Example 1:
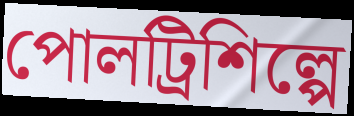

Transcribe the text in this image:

পোলট্রিশিল্পে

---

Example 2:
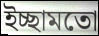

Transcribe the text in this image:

ইচ্ছামতো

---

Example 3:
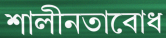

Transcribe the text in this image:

শালীনতাবোধ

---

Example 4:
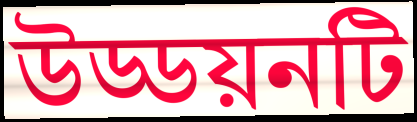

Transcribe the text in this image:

উড্ডয়নটি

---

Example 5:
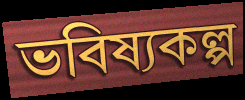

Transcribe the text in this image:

ভবিষ্যকল্প